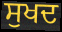
ਸੁਖਦ